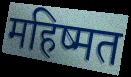
महिष्मत